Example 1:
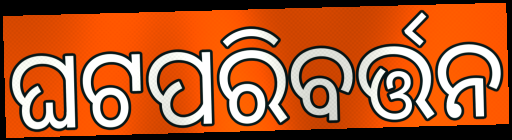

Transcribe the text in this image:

ଘଟପରିବର୍ତ୍ତନ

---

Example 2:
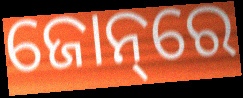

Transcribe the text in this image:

ଜୋନ୍‌ରେ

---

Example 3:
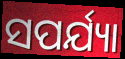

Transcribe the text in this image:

ସପର୍ଯ୍ୟା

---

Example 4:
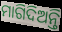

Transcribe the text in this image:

ମାଗିଦିଅନ୍ତି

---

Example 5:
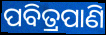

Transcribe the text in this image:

ପବିତ୍ରପାଣି